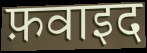
फ़वाइद